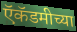
ऍकॅडमीच्या